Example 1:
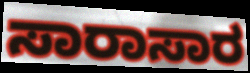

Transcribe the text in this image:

ಸಾರಾಸಾರ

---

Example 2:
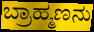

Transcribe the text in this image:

ಬ್ರಾಹ್ಮಣನು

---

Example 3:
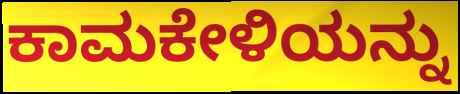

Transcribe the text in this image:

ಕಾಮಕೇಳಿಯನ್ನು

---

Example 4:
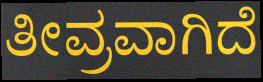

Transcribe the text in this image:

ತೀವ್ರವಾಗಿದೆ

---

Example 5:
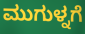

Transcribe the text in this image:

ಮುಗುಳ್ನಗೆ